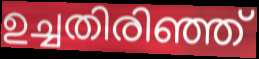
ഉച്ചതിരിഞ്ഞ്